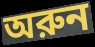
অরুন